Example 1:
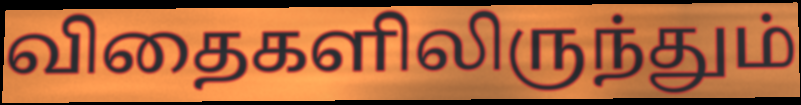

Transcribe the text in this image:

விதைகளிலிருந்தும்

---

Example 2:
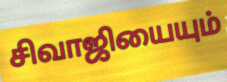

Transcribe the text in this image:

சிவாஜியையும்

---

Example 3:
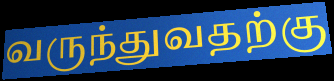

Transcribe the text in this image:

வருந்துவதற்கு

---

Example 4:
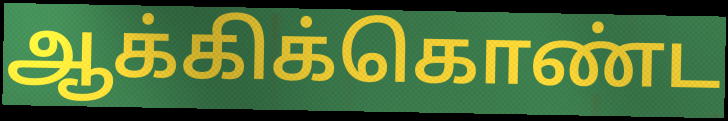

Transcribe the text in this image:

ஆக்கிக்கொண்ட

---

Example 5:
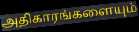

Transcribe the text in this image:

அதிகாரங்களையும்